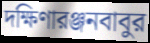
দক্ষিণারঞ্জনবাবুর